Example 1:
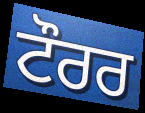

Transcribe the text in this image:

ਟੌਰਰ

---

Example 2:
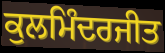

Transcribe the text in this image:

ਕੁਲਮਿੰਦਰਜੀਤ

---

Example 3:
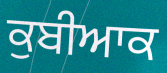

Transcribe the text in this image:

ਕੁਬੀਆਕ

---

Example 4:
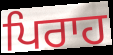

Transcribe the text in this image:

ਪਿਰਾਹ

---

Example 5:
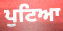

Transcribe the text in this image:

ਪੁਟਿਆ